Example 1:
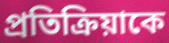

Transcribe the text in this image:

প্রতিক্রিয়াকে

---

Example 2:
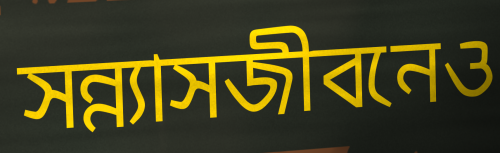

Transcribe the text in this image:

সন্ন্যাসজীবনেও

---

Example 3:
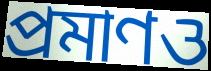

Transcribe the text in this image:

প্রমাণও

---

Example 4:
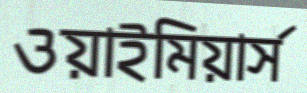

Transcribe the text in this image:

ওয়াইমিয়ার্স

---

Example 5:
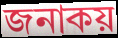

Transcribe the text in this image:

জনাকয়